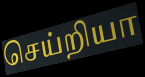
செய்றியா